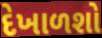
દેખાળશો